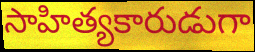
సాహిత్యకారుడుగా